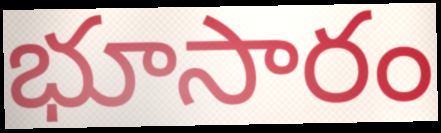
భూసారం